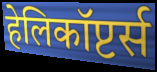
हेलिकॉप्टर्स